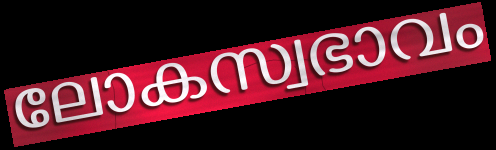
ലോകസ്വഭാവം